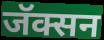
जॅक्सन